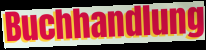
Buchhandlung